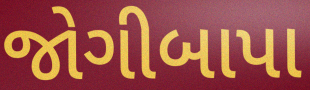
જોગીબાપા